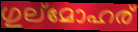
ഗുല്മോഹര്